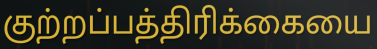
குற்றப்பத்திரிக்கையை